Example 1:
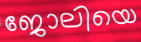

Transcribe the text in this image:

ജോലിയെ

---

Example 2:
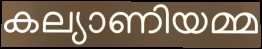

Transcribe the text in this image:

കല്യാണിയമ്മ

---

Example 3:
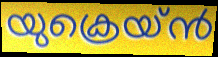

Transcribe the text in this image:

യുക്രെയ്ൻ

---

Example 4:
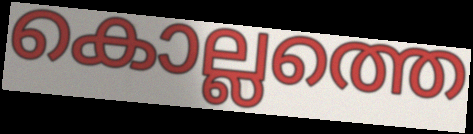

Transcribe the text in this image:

കൊല്ലത്തെ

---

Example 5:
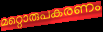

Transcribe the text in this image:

മറ്റൊരുപകരണം